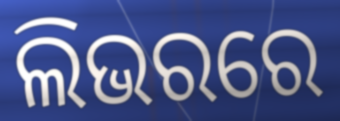
ଲିଭରରେ